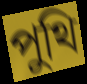
পুথি